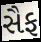
સૈફ